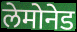
लेमोनेड